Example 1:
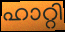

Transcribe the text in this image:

ഹാറ്റി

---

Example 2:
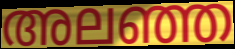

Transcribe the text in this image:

അലഞ്ഞ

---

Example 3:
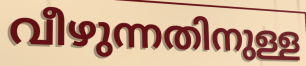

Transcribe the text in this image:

വീഴുന്നതിനുള്ള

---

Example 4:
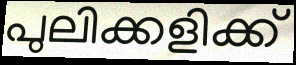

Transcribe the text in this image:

പുലിക്കളിക്ക്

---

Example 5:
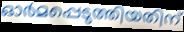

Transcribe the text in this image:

ഓർമപ്പെടുത്തിയതിന്